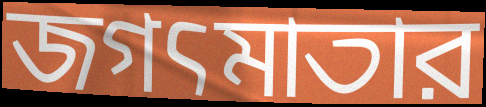
জগৎমাতার